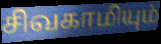
சிவகாமியும்